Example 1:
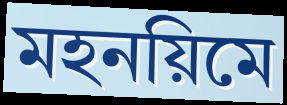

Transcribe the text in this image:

মহনয়িমে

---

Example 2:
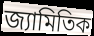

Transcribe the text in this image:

জ্যামিতিক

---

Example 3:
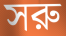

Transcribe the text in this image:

সরু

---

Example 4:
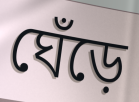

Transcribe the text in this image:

ঘেঁড়ে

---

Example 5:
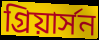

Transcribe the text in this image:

গ্রিয়ার্সন